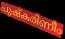
പുഷ്കരിണീം